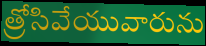
త్రోసివేయువారును